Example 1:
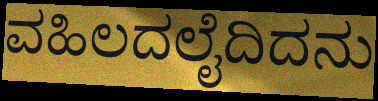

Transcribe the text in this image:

ವಹಿಲದಲೈದಿದನು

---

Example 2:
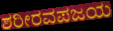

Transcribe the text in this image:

ಶರೀರವಪಜಯ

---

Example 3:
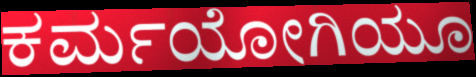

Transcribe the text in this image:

ಕರ್ಮಯೋಗಿಯೂ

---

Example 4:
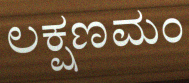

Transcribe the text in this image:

ಲಕ್ಷಣಮಂ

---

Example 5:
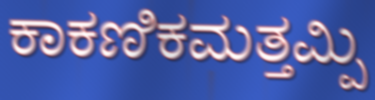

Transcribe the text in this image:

ಕಾಕಣಿಕಮತ್ತಮ್ಪಿ